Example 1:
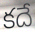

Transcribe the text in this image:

కదే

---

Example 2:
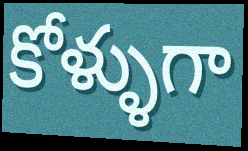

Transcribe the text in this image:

కోళ్ళుగా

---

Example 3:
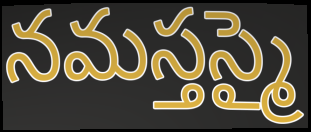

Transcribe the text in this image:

నమస్తస్మై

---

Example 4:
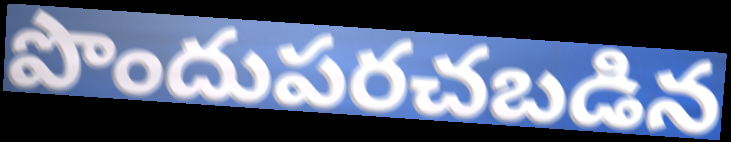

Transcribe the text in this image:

పొందుపరచబడిన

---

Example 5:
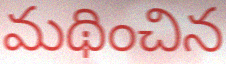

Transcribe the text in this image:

మథించిన